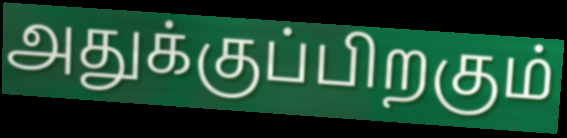
அதுக்குப்பிறகும்